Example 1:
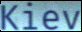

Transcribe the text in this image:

Kiev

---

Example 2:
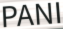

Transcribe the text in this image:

PANI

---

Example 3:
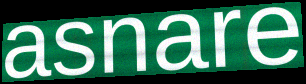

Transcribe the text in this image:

asnare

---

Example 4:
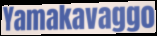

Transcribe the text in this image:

Yamakavaggo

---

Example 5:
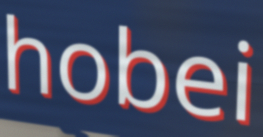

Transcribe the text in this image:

hobei